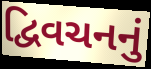
દ્વિવચનનું